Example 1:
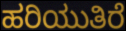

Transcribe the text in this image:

ಹರಿಯುತಿರೆ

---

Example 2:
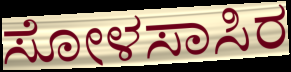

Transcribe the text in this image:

ಸೋಳಸಾಸಿರ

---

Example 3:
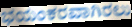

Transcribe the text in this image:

ಭಯಂಕರವಾಗಿರಲು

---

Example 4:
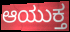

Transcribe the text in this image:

ಆಯುಕ್ತ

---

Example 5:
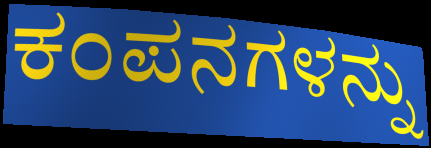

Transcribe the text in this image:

ಕಂಪನಗಳನ್ನು